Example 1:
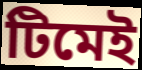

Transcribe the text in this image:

টিমেই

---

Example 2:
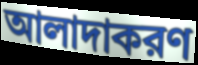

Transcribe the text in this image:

আলাদাকরণ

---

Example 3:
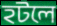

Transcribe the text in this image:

হটলে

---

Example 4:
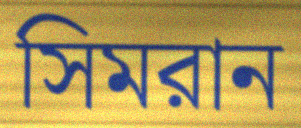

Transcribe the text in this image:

সিমরান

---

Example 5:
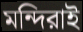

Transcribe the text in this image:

মন্দিরাই